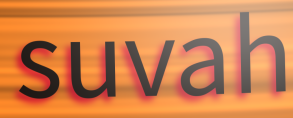
suvah